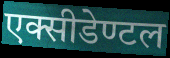
एक्सीडेण्टल